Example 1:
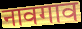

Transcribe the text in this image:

नावगाव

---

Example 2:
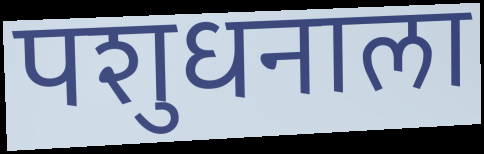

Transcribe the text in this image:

पशुधनाला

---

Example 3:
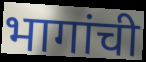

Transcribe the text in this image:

भागांची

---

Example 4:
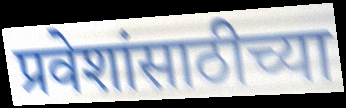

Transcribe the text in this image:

प्रवेशांसाठीच्या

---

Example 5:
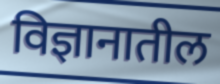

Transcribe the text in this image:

विज्ञानातील